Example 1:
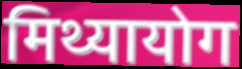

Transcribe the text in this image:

मिथ्यायोग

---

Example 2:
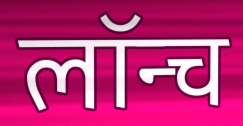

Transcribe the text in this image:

लॉन्‍च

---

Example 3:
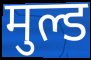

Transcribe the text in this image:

मुल्ड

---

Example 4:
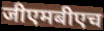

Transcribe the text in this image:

जीएमबीएच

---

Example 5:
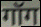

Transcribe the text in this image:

गॉग